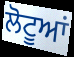
ਲੋਟੂਆਂ